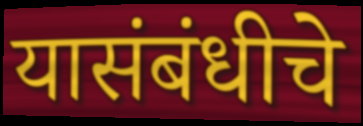
यासंबंधीचे